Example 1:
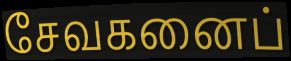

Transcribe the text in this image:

சேவகனைப்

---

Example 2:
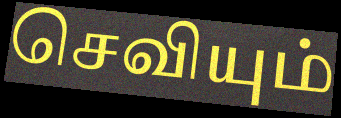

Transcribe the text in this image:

செவியும்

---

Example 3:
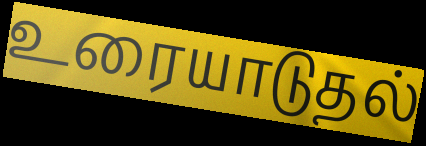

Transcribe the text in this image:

உரையாடுதல்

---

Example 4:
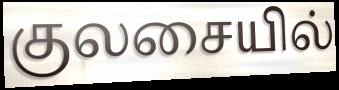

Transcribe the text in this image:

குலசையில்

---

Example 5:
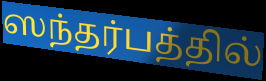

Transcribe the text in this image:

ஸந்தர்பத்தில்